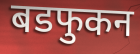
बडफुकन